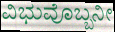
ವಿಭುವೊಬ್ಬನೀ